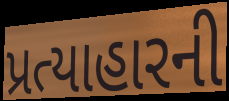
પ્રત્યાહારની